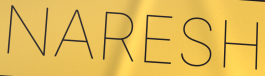
NARESH